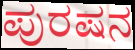
ಪುರಷನ